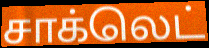
சாக்லெட்